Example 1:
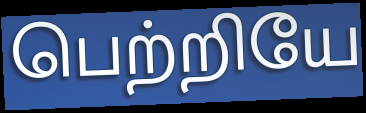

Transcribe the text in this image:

பெற்றியே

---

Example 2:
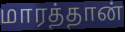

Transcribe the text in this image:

மாரத்தான்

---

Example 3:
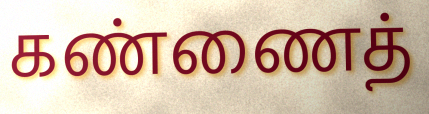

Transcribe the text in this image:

கண்ணைத்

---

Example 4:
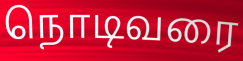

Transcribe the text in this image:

நொடிவரை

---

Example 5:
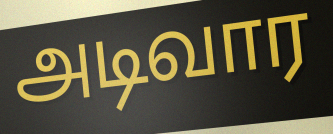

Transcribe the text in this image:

அடிவார